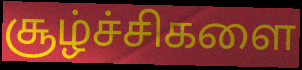
சூழ்ச்சிகளை